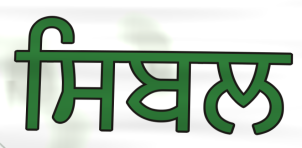
ਸਿਬਲ